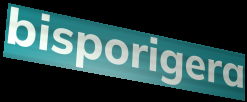
bisporigera